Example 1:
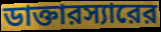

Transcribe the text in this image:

ডাক্তারস্যারের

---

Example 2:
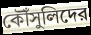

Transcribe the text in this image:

কৌঁসুলিদের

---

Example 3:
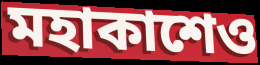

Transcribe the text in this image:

মহাকাশেও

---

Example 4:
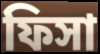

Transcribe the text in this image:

ফিসা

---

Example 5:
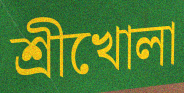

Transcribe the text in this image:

শ্রীখোলা